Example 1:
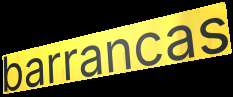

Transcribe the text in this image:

barrancas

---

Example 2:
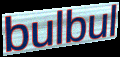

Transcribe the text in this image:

bulbul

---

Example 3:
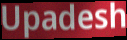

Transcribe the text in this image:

Upadesh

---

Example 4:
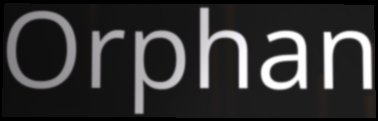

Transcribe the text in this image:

Orphan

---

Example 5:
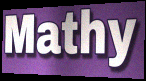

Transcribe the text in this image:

Mathy